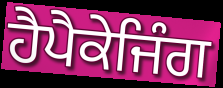
ਹੈਪੈਕੇਜਿੰਗ